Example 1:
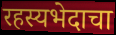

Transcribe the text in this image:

रहस्यभेदाचा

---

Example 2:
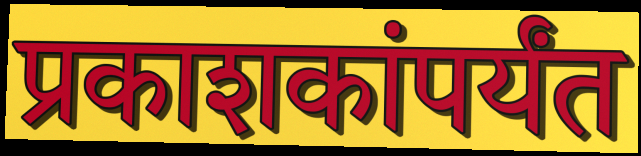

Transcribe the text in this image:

प्रकाशकांपर्यंत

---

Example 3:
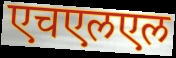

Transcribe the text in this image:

एचएलएल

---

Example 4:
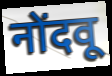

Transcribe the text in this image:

नोंदवू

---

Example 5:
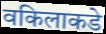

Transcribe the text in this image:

वकिलाकडे